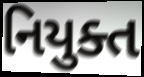
નિયુક્ત